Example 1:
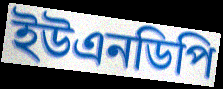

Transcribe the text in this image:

ইউএনডিপি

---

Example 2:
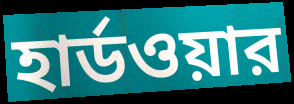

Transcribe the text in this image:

হার্ডওয়ার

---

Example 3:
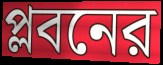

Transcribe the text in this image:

প্লবনের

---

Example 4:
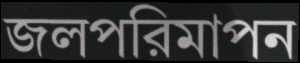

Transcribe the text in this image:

জলপরিমাপন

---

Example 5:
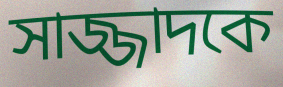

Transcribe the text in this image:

সাজ্জাদকে